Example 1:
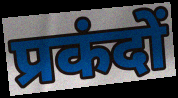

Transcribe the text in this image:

प्रकंदों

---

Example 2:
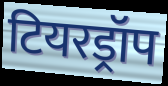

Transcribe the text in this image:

टियरड्रॉप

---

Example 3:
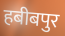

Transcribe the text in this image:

हबीबपुर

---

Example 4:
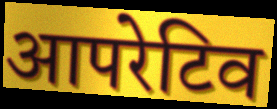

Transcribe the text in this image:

आपरेटिव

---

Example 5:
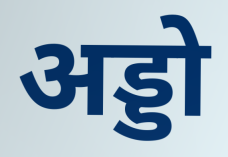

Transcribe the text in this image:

अड्डो